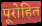
पूरोहित